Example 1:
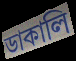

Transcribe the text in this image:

ডাকালি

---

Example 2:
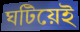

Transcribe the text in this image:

ঘটিয়েই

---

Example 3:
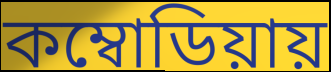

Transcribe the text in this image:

কম্বোডিয়ায়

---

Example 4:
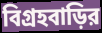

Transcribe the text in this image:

বিগ্রহবাড়ির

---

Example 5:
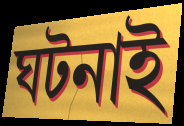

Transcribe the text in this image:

ঘটনাই